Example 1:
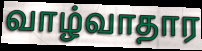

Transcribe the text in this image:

வாழ்வாதார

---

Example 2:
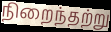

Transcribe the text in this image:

நிறைந்தற்று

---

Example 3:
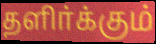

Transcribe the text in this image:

தளிர்க்கும்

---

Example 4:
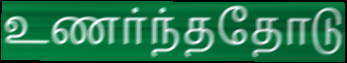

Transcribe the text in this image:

உணர்ந்ததோடு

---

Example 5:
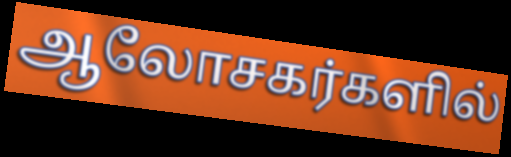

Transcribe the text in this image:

ஆலோசகர்களில்